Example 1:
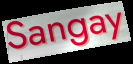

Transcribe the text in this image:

Sangay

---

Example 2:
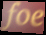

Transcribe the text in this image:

foe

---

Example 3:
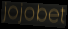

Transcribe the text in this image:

jojobet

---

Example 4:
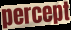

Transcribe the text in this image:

percept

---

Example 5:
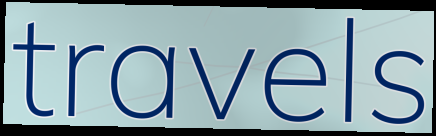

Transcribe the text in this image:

travels